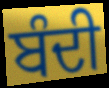
ਬੰਦੀ